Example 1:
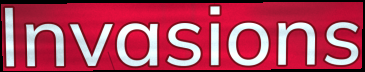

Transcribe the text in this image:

Invasions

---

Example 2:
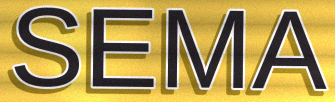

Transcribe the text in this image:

SEMA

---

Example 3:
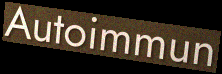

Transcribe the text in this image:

Autoimmun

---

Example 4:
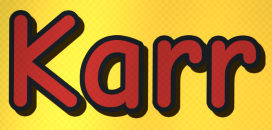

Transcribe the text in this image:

Karr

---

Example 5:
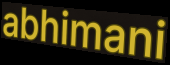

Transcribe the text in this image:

abhimani